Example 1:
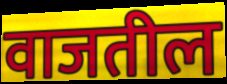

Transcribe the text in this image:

वाजतील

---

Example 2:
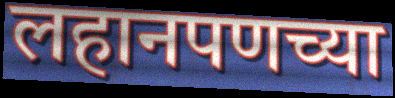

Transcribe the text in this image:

लहानपणच्या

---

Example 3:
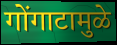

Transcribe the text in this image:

गोंगाटामुळे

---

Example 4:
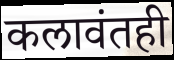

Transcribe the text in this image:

कलावंतही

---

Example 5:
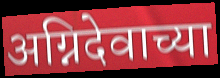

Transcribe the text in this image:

अग्निदेवाच्या